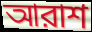
আরাশ